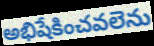
అభిషేకించవలెను